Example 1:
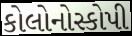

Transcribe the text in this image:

કોલોનોસ્કોપી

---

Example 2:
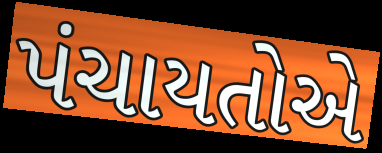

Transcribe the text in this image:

પંચાયતોએ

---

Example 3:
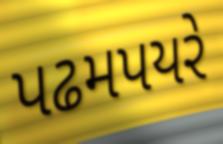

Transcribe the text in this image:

પઢમપયરે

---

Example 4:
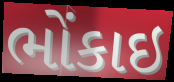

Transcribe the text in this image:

ભોંકાઇ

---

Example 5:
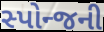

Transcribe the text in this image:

સ્પોન્જની